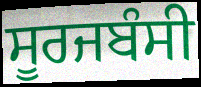
ਸੂਰਜਬੰਸੀ